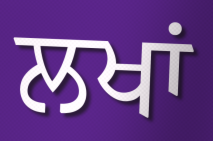
ਲਖਾਂ